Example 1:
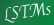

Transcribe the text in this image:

LSTMs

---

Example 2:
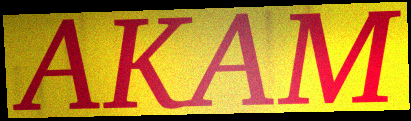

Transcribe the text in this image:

AKAM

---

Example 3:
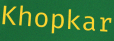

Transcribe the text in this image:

Khopkar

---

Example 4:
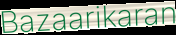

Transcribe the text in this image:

Bazaarikaran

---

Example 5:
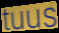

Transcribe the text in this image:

tuus